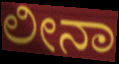
ಲೀನಾ